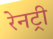
रेनट्री